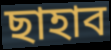
ছাহাব